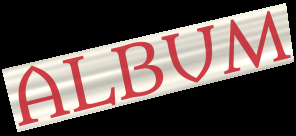
ALBUM